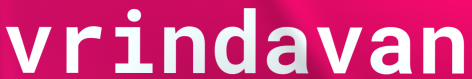
vrindavan